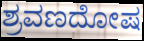
ಶ್ರವಣದೋಷ